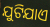
ଯୁଟିଯାଏ